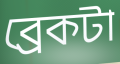
ব্রেকটা